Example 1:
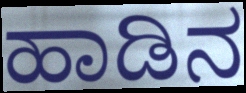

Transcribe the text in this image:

ಹಾಡಿನ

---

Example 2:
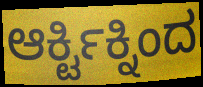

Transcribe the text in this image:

ಆರ್ಕ್ಟಿಕ್ನಿಂದ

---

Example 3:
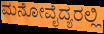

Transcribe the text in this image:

ಮನೋವೈದ್ಯರಲ್ಲಿ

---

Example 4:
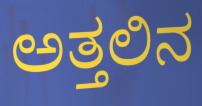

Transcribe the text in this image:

ಅತ್ತಲಿನ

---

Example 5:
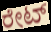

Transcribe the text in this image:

ರೇಟ್